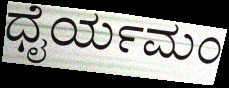
ಧೈರ್ಯಮಂ